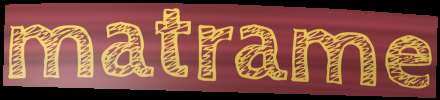
matrame